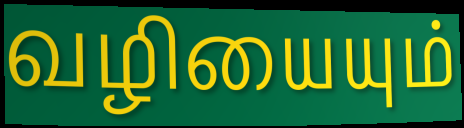
வழியையும்